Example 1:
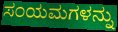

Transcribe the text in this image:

ಸಂಯಮಗಳನ್ನು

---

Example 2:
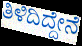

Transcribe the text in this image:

ತಿಳಿದಿದ್ದೇನೆ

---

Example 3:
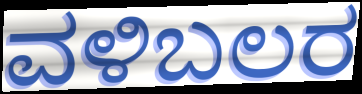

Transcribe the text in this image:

ವಳಿಬಲರ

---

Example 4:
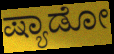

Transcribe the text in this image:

ಷ್ಯಾಡೋ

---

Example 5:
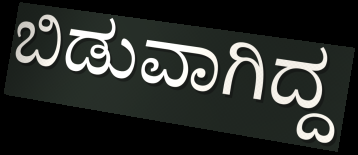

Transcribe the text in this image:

ಬಿಡುವಾಗಿದ್ದ